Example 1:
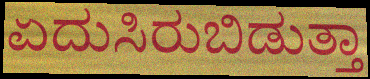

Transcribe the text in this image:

ಏದುಸಿರುಬಿಡುತ್ತಾ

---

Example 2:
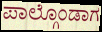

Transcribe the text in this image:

ಪಾಲ್ಗೊಂಡಾಗ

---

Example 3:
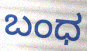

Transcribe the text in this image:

ಬಂಧ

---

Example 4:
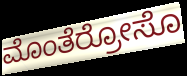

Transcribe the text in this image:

ಮೊಂತೆರ್ರೋಸೊ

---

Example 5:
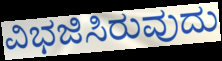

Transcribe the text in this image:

ವಿಭಜಿಸಿರುವುದು